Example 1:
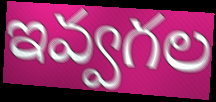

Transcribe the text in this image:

ఇవ్వగల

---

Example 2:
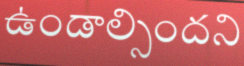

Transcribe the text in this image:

ఉండాల్సిందని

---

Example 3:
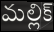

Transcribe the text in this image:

మల్లిక్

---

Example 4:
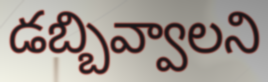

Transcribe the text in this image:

డబ్బివ్వాలని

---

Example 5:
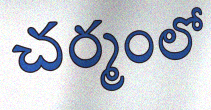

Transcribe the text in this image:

చర్మంలో